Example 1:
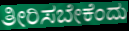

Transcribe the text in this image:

ತೀರಿಸಬೇಕೆಂದು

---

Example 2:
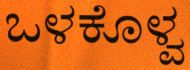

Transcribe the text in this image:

ಒಳಕೊಳ್ವ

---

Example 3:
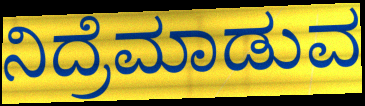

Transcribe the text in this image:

ನಿದ್ರೆಮಾಡುವ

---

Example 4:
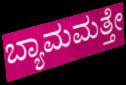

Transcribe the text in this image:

ಬ್ಯಾಮಮತ್ತೇ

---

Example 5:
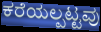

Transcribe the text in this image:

ಕರೆಯಲ್ಪಟ್ಟವು